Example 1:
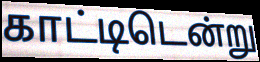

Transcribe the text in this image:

காட்டிடென்று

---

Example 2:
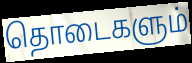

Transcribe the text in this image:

தொடைகளும்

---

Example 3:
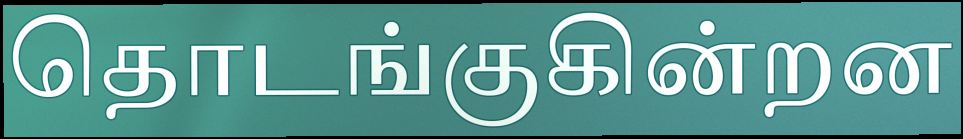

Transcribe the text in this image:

தொடங்குகின்றன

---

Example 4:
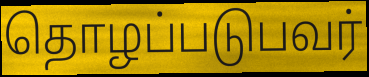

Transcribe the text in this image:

தொழப்படுபவர்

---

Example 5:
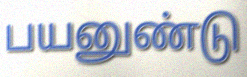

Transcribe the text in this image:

பயனுண்டு